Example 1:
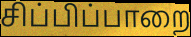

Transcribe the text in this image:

சிப்பிப்பாறை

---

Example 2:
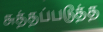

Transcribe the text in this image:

சுத்தப்படுத்த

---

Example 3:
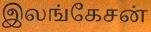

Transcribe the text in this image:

இலங்கேசன்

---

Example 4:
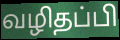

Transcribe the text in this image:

வழிதப்பி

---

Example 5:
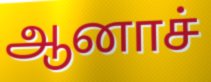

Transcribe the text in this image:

ஆனாச்